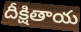
దీక్షితాయ